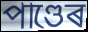
পাণ্ডেৰ